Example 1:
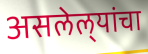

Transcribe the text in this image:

असलेल्यांचा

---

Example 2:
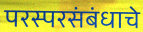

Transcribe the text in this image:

परस्परसंबंधाचे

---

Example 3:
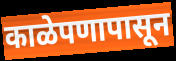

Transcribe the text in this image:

काळेपणापासून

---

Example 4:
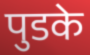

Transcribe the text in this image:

पुडके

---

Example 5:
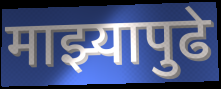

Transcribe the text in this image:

माझ्यापुढे